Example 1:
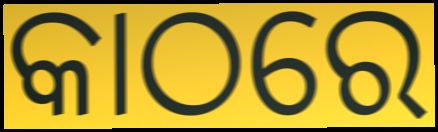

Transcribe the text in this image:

କାଠରେ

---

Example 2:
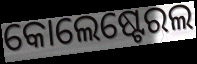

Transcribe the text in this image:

କୋଲେଷ୍ଟେରଲ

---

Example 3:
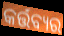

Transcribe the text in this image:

କର୍ତ୍ତବ୍ୟର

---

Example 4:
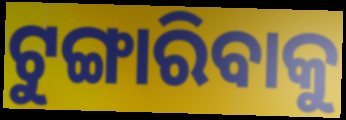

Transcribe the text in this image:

ଟୁଙ୍ଗାରିବାକୁ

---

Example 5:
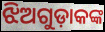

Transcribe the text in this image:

ଝିଅଗୁଡ଼ାକଙ୍କ